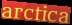
arctica